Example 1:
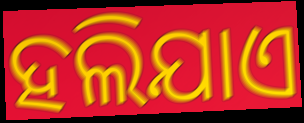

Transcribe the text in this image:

ହଲିଯାଏ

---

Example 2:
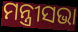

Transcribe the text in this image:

ମନ୍ତ୍ରୀସଭା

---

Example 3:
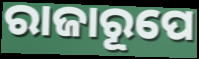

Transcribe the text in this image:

ରାଜାରୂପେ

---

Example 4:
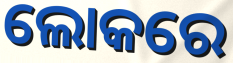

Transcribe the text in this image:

ଲୋକରେ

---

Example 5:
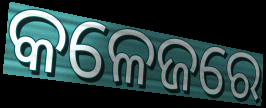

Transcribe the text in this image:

କଳେଜରେ